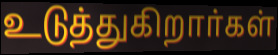
உடுத்துகிறார்கள்